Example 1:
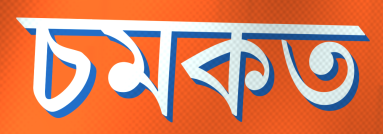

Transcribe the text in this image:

চমকত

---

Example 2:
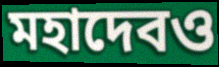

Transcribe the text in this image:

মহাদেবও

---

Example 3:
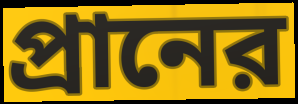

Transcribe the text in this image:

প্রানের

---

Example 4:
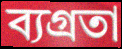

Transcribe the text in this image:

ব্যগ্রতা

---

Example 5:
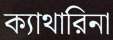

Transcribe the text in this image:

ক্যাথারিনা